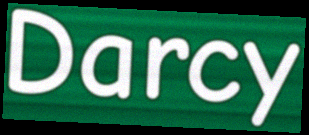
Darcy